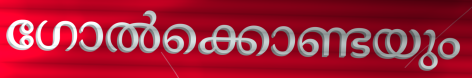
ഗോൽക്കൊണ്ടയും